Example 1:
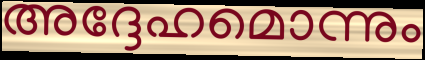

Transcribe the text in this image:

അദ്ദേഹമൊന്നും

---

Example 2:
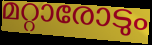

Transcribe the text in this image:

മറ്റാരോടും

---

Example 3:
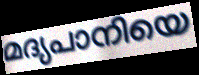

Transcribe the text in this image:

മദ്യപാനിയെ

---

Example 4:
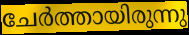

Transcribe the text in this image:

ചേർത്തായിരുന്നു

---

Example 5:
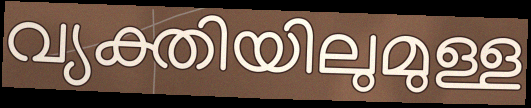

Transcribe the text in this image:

വ്യക്തിയിലുമുള്ള